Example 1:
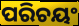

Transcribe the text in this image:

ପରିଚୟଂ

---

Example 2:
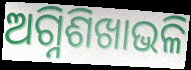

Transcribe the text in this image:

ଅଗ୍ନିଶିଖାଭଳି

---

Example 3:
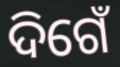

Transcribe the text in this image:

ଦିଗେଁ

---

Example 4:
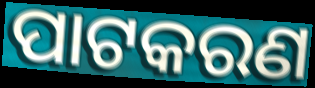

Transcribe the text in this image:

ପାଟକରଣ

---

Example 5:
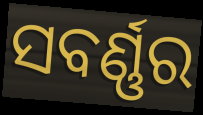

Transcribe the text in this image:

ସବର୍ଣ୍ଣର